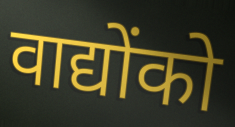
वाद्योंको